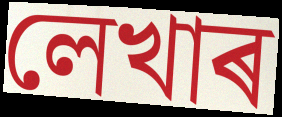
লেখাৰ